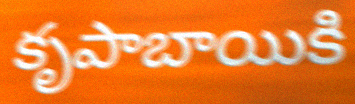
కృపాబాయికి